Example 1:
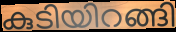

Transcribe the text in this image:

കുടിയിറങ്ങി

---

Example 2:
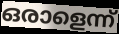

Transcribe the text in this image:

ഒരാളെന്ന്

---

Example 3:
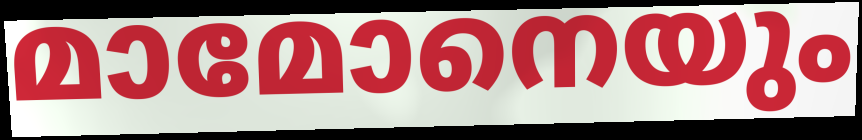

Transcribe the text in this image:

മാമോനെയും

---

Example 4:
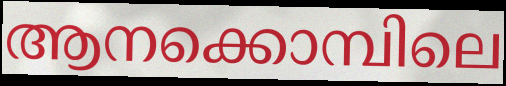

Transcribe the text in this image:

ആനക്കൊമ്പിലെ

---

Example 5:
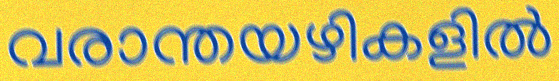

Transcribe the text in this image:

വരാന്തയഴികളിൽ